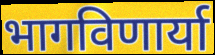
भागविणार्या